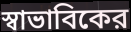
স্বাভাবিকের